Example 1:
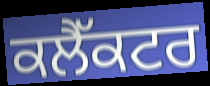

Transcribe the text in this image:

ਕਲੈੱਕਟਰ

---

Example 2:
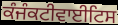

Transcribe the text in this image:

ਕੰਜੰਕਟੀਵਾਈਟਿਸ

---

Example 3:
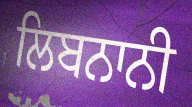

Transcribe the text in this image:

ਲਿਬਨਾਨੀ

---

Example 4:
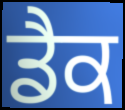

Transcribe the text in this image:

ਡੈਕ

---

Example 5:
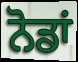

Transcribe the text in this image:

ਨੋਡਾਂ